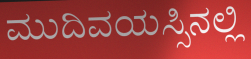
ಮುದಿವಯಸ್ಸಿನಲ್ಲಿ